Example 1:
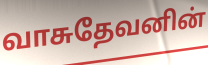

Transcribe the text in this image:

வாசுதேவனின்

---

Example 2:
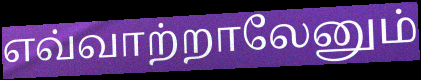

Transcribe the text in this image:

எவ்வாற்றாலேனும்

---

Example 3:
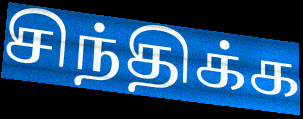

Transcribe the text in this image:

சிந்திக்க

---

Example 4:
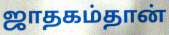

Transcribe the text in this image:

ஜாதகம்தான்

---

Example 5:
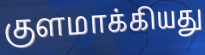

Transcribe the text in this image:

குளமாக்கியது